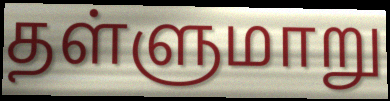
தள்ளுமாறு